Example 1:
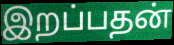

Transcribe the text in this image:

இறப்பதன்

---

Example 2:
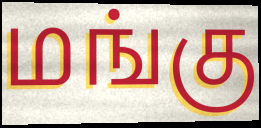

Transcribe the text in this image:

மங்கு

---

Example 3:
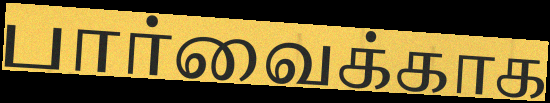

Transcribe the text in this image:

பார்வைக்காக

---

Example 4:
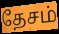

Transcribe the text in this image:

தேசம்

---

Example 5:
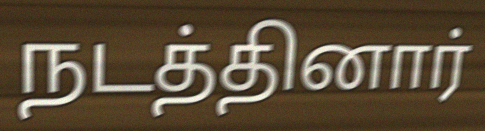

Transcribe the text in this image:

நடத்தினார்